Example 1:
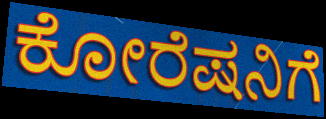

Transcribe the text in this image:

ಕೋರೆಷನಿಗೆ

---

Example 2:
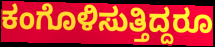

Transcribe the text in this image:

ಕಂಗೊಳಿಸುತ್ತಿದ್ದರೂ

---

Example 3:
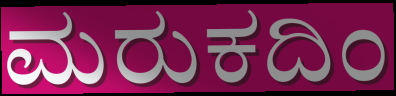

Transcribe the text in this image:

ಮರುಕದಿಂ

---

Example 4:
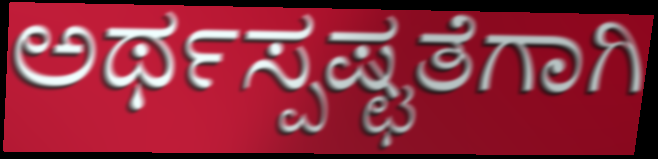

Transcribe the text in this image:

ಅರ್ಥಸ್ಪಷ್ಟತೆಗಾಗಿ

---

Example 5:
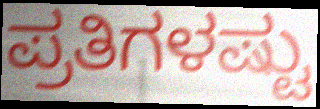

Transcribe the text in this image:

ಪ್ರತಿಗಳಷ್ಟು